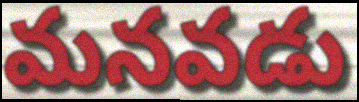
మనవడు